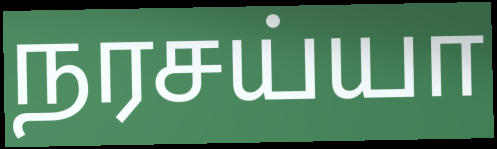
நரசய்யா